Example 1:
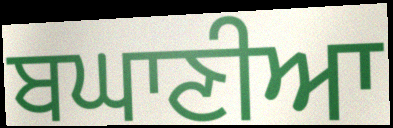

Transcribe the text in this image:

ਬਘਾਣੀਆ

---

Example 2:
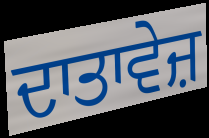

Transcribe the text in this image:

ਦਾਤਾਵੇਜ਼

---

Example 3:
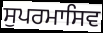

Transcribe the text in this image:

ਸੁਪਰਮਾਸਿਵ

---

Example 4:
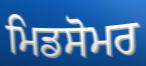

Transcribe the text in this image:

ਮਿਡਸੋਮਰ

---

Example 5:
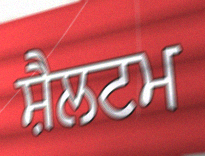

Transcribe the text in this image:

ਸ਼ੈਲਟਮ